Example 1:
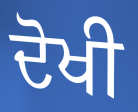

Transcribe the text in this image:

ਦੋਖੀ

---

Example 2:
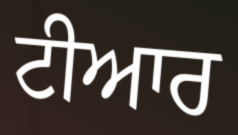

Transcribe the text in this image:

ਟੀਆਰ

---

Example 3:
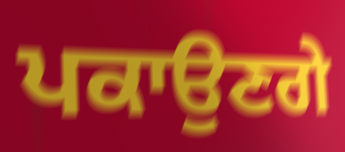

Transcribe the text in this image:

ਪਕਾਉਣਗੇ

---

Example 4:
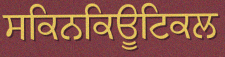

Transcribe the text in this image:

ਸਕਿਨਕਿਊਟਿਕਲ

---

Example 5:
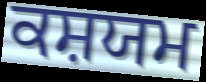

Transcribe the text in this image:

ਕਸ਼ਯਮ